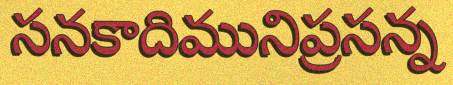
సనకాదిమునిప్రసన్న